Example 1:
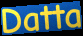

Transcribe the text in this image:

Datta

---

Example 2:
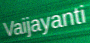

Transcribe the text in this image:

Vaijayanti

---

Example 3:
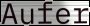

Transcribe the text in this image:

Aufer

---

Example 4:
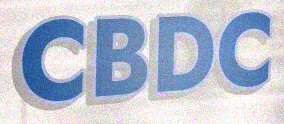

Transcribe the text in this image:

CBDC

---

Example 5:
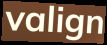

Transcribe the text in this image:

valign